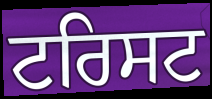
ਟਰਿਸਟ